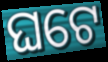
ଘଟେ